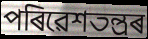
পৰিৱেশতন্ত্ৰৰ